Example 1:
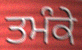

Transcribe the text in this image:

ਤਮੰਕੇ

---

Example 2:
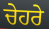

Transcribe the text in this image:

ਚੇਹਰੇ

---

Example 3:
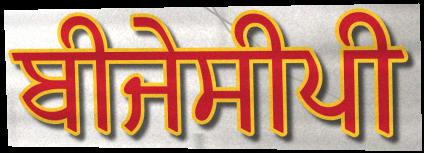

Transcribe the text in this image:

ਬੀਜੇਸੀਪੀ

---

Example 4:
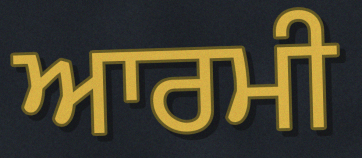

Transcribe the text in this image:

ਆਰਮੀ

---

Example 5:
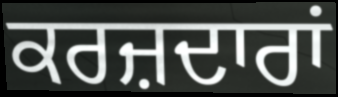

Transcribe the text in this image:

ਕਰਜ਼ਦਾਰਾਂ